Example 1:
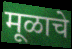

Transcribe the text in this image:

मूळाचे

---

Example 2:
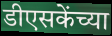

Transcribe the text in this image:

डीएसकेंच्या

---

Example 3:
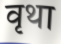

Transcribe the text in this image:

वृथा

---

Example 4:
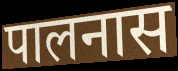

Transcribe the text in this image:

पालनास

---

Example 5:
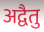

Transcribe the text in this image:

अद्वैतु